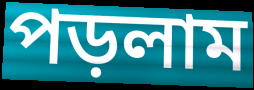
পড়লাম